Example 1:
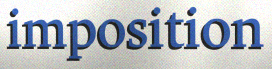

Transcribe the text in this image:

imposition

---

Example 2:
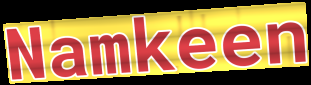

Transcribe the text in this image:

Namkeen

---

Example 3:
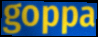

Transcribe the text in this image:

goppa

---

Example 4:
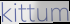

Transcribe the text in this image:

kittum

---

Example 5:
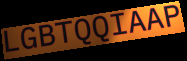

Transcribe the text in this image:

LGBTQQIAAP